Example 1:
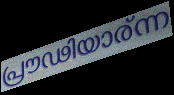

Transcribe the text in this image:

പ്രൗഢിയാര്ന്ന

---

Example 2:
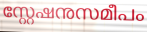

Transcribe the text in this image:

സ്റ്റേഷനുസമീപം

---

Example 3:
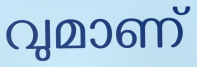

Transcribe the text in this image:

വുമാണ്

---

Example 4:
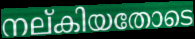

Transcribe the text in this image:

നല്കിയതോടെ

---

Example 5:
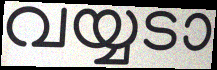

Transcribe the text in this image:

വയ്യടാ